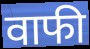
वाफी